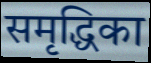
समृद्धिका